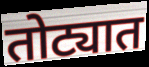
तोट्यात